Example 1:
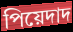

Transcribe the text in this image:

পিয়েদাদ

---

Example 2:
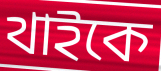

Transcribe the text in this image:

থাইকে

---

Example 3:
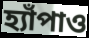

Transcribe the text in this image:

হ্যাঁপাও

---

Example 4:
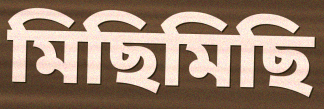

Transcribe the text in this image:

মিছিমিছি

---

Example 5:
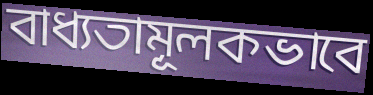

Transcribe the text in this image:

বাধ্যতামূলকভাবে